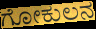
ಗೋಕುಲನ